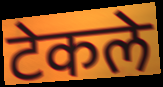
टेकले